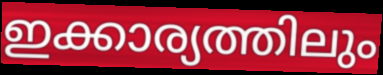
ഇക്കാര്യത്തിലും